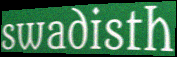
swadisth